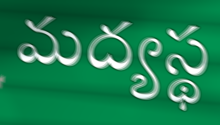
మద్యస్థ